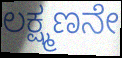
ಲಕ್ಷ್ಮಣನೇ